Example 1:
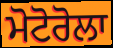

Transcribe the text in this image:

ਮੋਟੋਰੋਲਾ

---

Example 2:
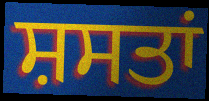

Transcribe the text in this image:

ਸ਼ਸਤਾਂ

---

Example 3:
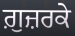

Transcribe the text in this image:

ਗ਼ੁਜ਼ਰਕੇ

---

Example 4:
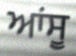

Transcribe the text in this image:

ਆਂਸੂ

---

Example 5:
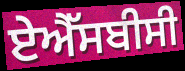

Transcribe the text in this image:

ਏਐੱਸਬੀਸੀ